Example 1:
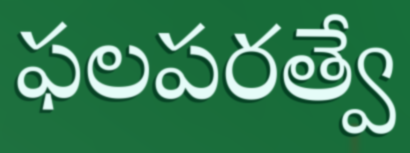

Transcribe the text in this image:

ఫలపరత్వే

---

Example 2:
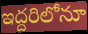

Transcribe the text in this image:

ఇద్దరిలోనూ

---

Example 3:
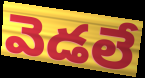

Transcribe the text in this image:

వెడలే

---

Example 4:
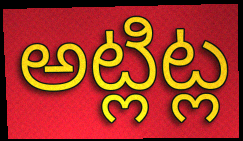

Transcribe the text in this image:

అట్లిట్ల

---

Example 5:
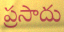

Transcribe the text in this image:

ప్రసాదు